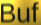
Buf